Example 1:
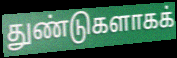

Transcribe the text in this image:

துண்டுகளாகக்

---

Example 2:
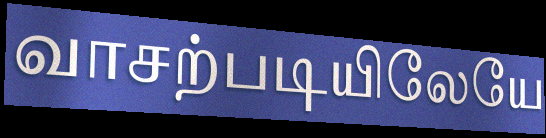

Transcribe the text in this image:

வாசற்படியிலேயே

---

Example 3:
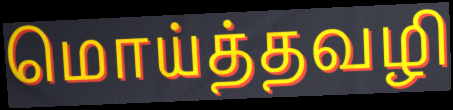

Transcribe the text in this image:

மொய்த்தவழி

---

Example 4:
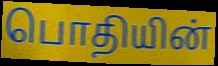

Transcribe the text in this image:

பொதியின்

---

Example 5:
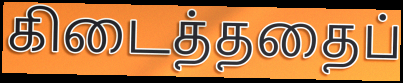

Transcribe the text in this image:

கிடைத்ததைப்